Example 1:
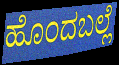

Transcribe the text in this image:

ಹೊಂದಬಲ್ಲೆ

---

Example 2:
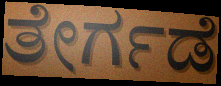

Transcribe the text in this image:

ತೇರ್ಗಡೆ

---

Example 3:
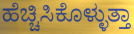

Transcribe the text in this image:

ಹೆಚ್ಚಿಸಿಕೊಳ್ಳುತ್ತಾ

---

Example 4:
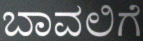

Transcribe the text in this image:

ಬಾವಲಿಗೆ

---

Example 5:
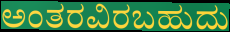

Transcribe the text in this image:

ಅಂತರವಿರಬಹುದು